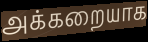
அக்கறையாக